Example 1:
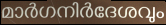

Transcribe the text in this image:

മാർഗനിർദേശവും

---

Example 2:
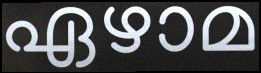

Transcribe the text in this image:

ഏഴാമ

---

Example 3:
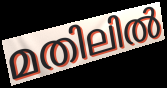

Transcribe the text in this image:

മതിലിൽ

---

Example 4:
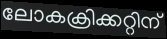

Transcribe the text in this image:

ലോകക്രിക്കറ്റിന്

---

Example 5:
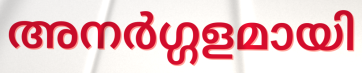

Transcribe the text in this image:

അനർഗ്ഗളമായി